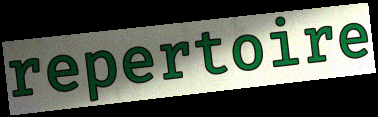
repertoire